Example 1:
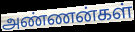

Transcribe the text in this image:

அண்ணன்கள்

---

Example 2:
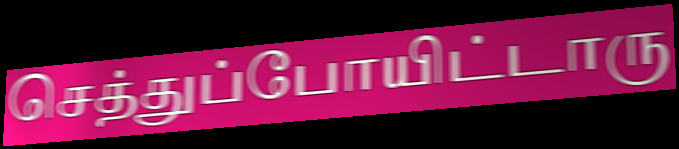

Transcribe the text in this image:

செத்துப்போயிட்டாரு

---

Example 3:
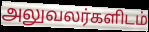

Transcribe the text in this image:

அலுவலர்களிடம்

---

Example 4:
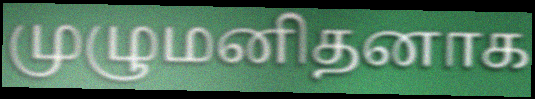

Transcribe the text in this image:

முழுமனிதனாக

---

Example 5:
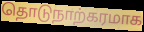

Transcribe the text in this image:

தொடுநாற்கரமாக